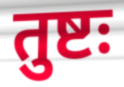
तुष्टः